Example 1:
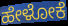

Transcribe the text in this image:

ಹೇಳೋಕೆ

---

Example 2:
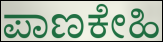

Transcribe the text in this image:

ಪಾಣಕೇಹಿ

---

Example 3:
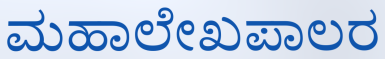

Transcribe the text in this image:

ಮಹಾಲೇಖಪಾಲರ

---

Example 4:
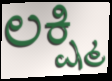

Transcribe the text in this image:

ಲಕ್ಷ್ಮಿ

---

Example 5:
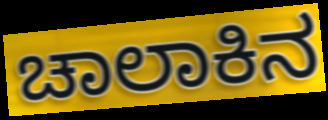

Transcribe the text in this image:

ಚಾಲಾಕಿನ